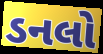
ડનલો